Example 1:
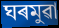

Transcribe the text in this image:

ঘৰমুৱা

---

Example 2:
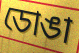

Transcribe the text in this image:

ডোঙা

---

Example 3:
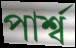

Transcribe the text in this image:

পাৰ্শ্ব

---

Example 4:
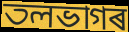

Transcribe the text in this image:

তলভাগৰ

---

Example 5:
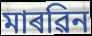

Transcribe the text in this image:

মাৰৱিন